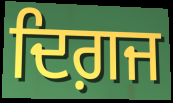
ਦਿਗ਼ਜ